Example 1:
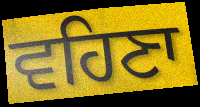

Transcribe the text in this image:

ਵਹਿਣਾ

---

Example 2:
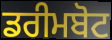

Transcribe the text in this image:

ਡਰੀਮਬੋਟ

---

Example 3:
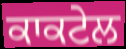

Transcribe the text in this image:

ਕਾਕਟੇਲ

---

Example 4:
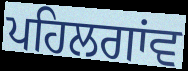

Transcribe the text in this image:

ਪਹਿਲਗਾਂਵ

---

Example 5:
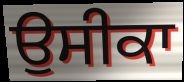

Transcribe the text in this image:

ਉਸੀਕਾ